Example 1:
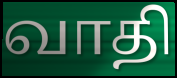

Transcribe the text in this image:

வாதி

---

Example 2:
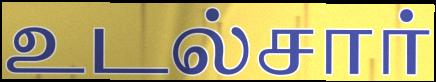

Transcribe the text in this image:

உடல்சார்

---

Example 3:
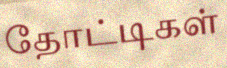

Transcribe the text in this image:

தோட்டிகள்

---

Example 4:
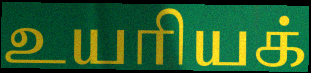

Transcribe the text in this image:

உயரியக்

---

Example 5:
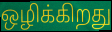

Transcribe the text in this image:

ஒழிக்கிறது